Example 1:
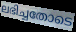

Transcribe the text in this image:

ലഭിച്ചതോടെ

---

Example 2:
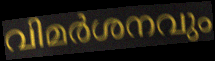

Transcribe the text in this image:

വിമർശനവും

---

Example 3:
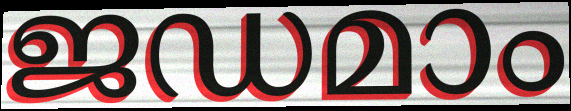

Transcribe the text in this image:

ജഡമാം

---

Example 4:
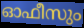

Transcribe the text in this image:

ഓഫീസും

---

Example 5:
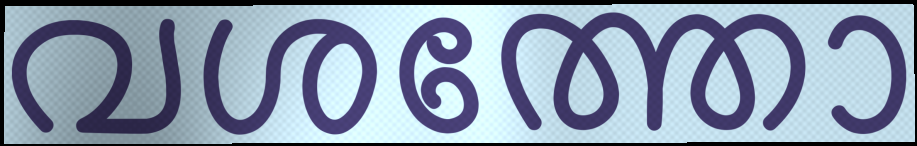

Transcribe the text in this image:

വശത്തോ